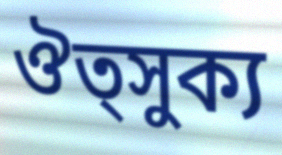
ঔত্সুক্য